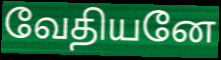
வேதியனே